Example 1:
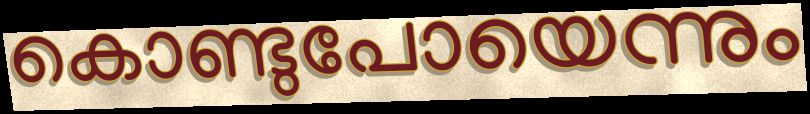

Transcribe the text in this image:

കൊണ്ടുപോയെന്നും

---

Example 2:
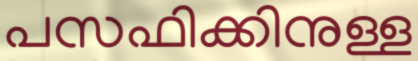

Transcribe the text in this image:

പസഫിക്കിനുള്ള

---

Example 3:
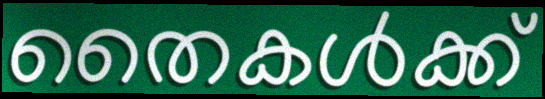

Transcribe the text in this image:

തൈകൾക്ക്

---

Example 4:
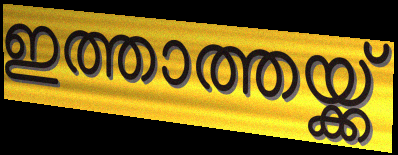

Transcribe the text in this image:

ഇത്താത്തയ്ക്ക്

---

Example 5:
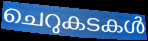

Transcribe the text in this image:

ചെറുകടകൾ